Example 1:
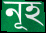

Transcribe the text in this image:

নূহ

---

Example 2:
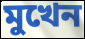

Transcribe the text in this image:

মুখেন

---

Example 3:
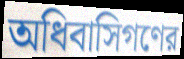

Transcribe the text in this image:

অধিবাসিগণের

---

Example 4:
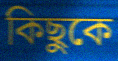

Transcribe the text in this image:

কিছুকে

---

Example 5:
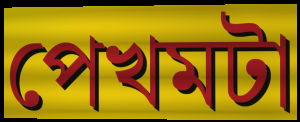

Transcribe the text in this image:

পেখমটা